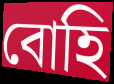
বোহি